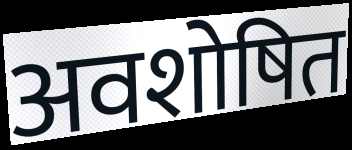
अवशोषित